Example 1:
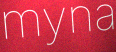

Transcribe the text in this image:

myna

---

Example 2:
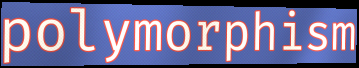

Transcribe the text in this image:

polymorphism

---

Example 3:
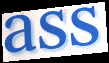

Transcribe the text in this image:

ass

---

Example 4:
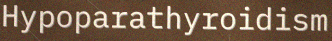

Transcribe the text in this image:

Hypoparathyroidism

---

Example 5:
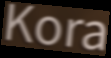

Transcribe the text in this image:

Kora